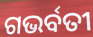
ଗଭର୍ବତୀ